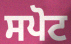
ਸਪੋਟ